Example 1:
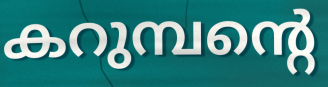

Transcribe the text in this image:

കറുമ്പന്റെ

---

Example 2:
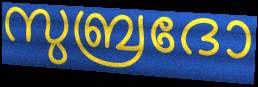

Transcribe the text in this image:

സുബ്രദോ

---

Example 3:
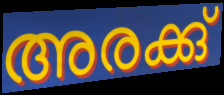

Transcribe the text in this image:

അരക്കു്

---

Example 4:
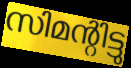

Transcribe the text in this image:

സിമന്റിട്ടു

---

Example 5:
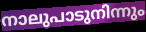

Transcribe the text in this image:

നാലുപാടുനിന്നും